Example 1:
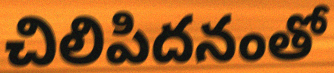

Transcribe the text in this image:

చిలిపిదనంతో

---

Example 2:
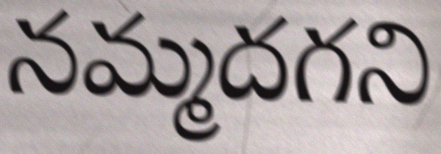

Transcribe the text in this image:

నమ్మదగని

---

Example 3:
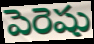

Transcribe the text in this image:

పెరెషు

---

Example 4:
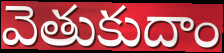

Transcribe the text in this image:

వెతుకుదాం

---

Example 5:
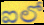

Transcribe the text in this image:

ఐలో